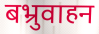
बभ्रुवाहन